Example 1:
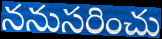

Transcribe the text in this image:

ననుసరించు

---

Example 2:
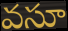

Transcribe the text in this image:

వసూ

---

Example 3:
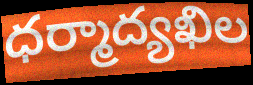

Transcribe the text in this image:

ధర్మాద్యఖిల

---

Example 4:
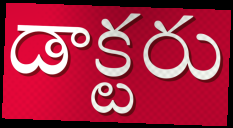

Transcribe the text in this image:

డాక్టరు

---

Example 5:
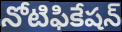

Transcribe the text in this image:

నోటిఫికేషన్